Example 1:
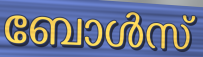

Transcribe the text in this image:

ബോൾസ്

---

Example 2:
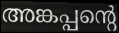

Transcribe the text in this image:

അങ്കപ്പന്റെ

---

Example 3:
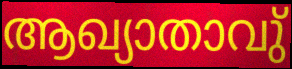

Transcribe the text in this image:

ആഖ്യാതാവു്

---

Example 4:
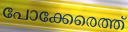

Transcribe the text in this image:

പോക്കേരെത്ത്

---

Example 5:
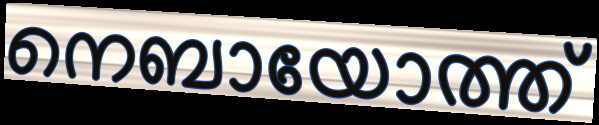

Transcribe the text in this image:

നെബായോത്ത്